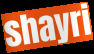
shayri